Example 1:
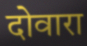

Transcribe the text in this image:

दोवारा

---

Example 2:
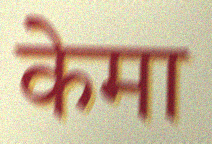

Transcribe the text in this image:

केमा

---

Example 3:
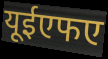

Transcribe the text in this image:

यूईएफए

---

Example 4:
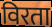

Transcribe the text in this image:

विरता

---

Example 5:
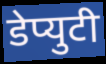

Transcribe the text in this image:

डेप्युटी